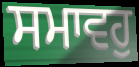
ਸਮਾਵਹੁ